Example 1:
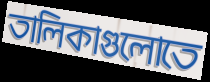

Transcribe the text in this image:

তালিকাগুলোতে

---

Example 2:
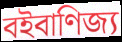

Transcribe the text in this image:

বইবাণিজ্য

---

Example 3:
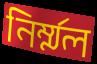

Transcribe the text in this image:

নির্ম্মল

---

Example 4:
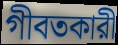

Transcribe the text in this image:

গীবতকারী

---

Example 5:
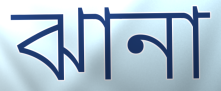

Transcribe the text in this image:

ঝানা